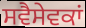
ਸਵੈਸੇਵਕਾਂ